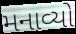
મનાવ્યો